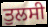
ਤੁਲਸੀ